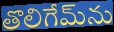
తొలిగేమ్‌ను